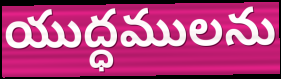
యుద్ధములను